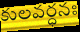
కులవర్ధనః